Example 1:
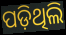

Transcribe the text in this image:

ପଡ଼ିଥିଲି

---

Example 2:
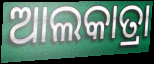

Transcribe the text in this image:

ଆଲକାତ୍ରା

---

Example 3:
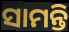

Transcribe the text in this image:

ସାମନ୍ତି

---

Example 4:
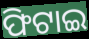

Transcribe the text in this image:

ଫିଟାଇ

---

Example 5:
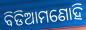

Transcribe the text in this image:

ବିଡିଆମଣୋହି